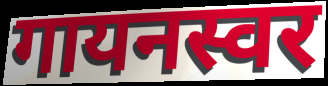
गायनस्वर